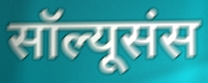
सॉल्यूसंस